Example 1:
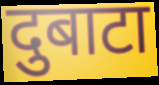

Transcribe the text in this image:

दुबाटा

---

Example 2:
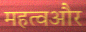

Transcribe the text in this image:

महत्वऔर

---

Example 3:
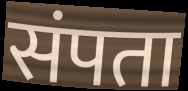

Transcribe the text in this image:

संपता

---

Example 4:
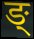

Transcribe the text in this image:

ङ्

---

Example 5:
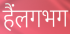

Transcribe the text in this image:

हैंलगभग